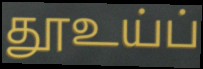
தூஉய்ப்